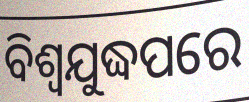
ବିଶ୍ୱଯୁଦ୍ଧପରେ